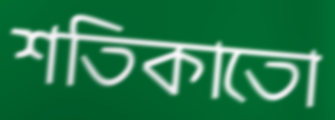
শতিকাতো